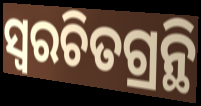
ସ୍ଵରଚିତଗ୍ରନ୍ଥି